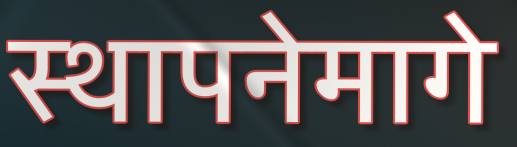
स्थापनेमागे